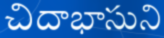
చిదాభాసుని